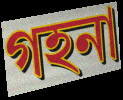
গহনা